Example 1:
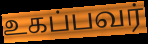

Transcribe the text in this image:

உகப்பவர்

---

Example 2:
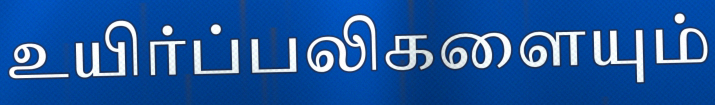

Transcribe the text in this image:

உயிர்ப்பலிகளையும்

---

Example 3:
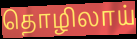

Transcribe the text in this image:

தொழிலாய்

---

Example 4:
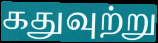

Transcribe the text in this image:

கதுவுற்று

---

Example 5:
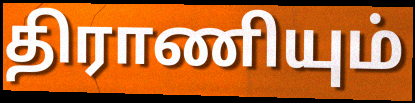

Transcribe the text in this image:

திராணியும்